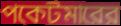
পকেটমারের